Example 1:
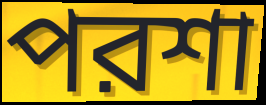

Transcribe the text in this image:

পরশা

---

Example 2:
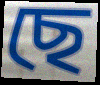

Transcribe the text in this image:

ছে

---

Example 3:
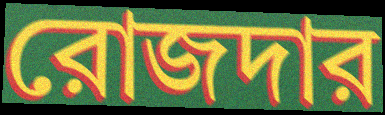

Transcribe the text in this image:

রোজদার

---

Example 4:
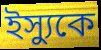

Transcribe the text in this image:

ইস্যুকে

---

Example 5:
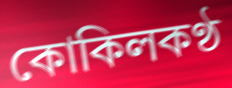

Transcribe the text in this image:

কোকিলকণ্ঠ